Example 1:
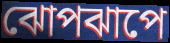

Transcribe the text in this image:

ঝোপঝাপে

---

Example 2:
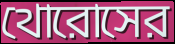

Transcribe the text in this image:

থোরোসের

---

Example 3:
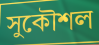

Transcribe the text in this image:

সুকৌশল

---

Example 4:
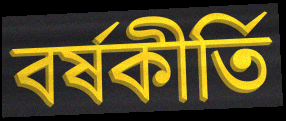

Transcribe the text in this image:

বর্ষকীর্তি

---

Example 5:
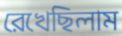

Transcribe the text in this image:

রেখেছিলাম